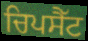
ਚਿਪਸੈੱਟ